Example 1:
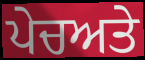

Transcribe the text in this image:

ਪੇਚਅਤੇ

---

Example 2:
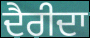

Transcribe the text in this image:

ਦੈਰੀਦਾ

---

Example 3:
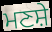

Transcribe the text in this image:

ਮਣਸ਼ੇ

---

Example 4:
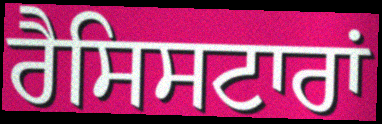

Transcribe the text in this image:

ਰੈਸਿਸਟਾਰਾਂ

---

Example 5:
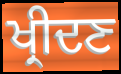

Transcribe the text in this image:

ਖ੍ਰੀਦਣ